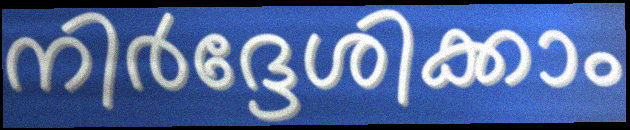
നിർദ്ദേശിക്കാം